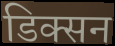
डिक्सन